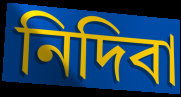
নিদিবা